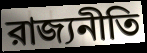
রাজ্যনীতি